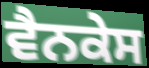
ਵੈਨਕੇਸ